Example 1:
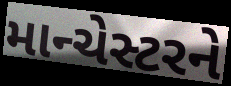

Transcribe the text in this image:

માન્ચેસ્ટરને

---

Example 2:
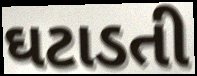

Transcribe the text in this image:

ઘટાડતી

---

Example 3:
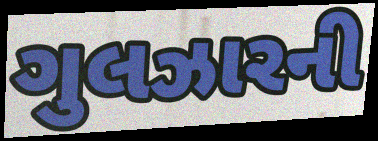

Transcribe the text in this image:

ગુલઝારની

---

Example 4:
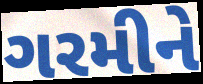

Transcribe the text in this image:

ગરમીને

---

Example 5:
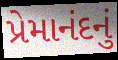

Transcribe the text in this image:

પ્રેમાનંદનું